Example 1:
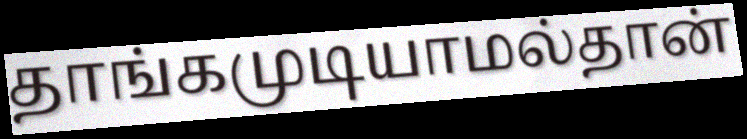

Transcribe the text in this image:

தாங்கமுடியாமல்தான்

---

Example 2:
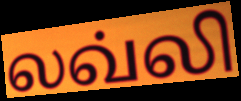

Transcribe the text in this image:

லவ்லி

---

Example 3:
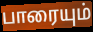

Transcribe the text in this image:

பாரையும்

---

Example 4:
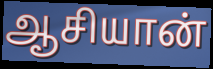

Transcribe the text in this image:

ஆசியான்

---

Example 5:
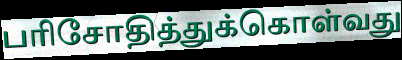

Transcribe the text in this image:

பரிசோதித்துக்கொள்வது